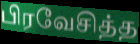
பிரவேசித்த